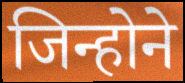
जिन्होने